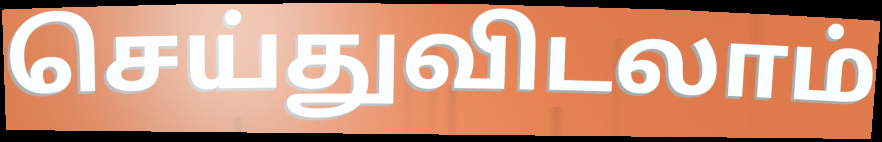
செய்துவிடலாம்